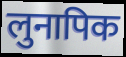
लुनापिक